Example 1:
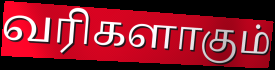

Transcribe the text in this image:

வரிகளாகும்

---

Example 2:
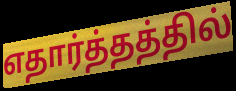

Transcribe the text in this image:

எதார்த்தத்தில்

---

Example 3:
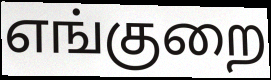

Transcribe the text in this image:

எங்குறை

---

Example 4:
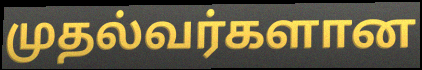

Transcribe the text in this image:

முதல்வர்களான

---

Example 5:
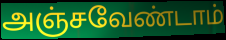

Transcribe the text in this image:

அஞ்சவேண்டாம்